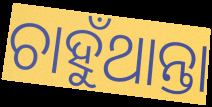
ଚାହୁଁଥାନ୍ତା